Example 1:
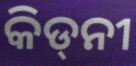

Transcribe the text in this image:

କିଡ୍‍ନୀ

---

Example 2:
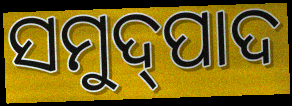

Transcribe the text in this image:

ସମୁଦ୍‌ପାଦ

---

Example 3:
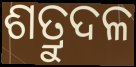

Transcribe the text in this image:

ଶତ୍ରୁଦଳ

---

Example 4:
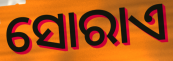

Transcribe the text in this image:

ସୋରାଏ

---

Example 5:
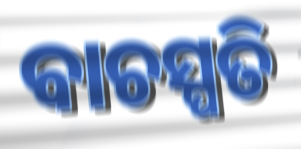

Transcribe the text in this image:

ବାଚସ୍ପତି